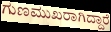
ಗುಣಮುಖರಾಗಿದ್ದಾರೆ